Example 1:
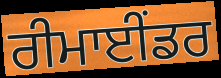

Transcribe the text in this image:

ਰੀਮਾਈਂਡਰ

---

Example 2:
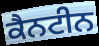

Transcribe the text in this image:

ਕੈਨਟੀਨ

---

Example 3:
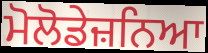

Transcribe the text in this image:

ਮੋਲੋਡੇਜ਼ਨਿਆ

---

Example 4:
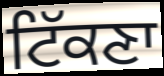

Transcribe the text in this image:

ਟਿੱਕਣਾ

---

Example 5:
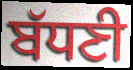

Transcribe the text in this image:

ਬੱਧਣੀ